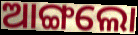
ଆଙ୍ଗଲୋ